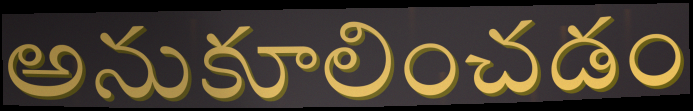
అనుకూలించడం